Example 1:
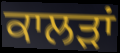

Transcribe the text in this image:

ਕਾਲੜਾਂ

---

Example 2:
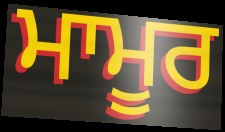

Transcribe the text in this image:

ਮਾਮੂਰ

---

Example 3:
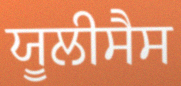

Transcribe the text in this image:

ਯੂਲੀਸੈਸ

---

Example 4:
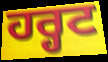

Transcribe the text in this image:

ਹਰ੍ਹਟ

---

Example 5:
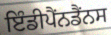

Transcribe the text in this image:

ਇੰਡੀਪੈਂਨਡੈਂਨਸ